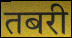
तबरी